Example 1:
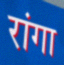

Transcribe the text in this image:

रांगा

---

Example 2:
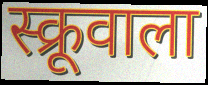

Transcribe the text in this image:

स्क्रूवाला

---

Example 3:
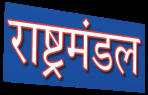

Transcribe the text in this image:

राष्ट्रमंडल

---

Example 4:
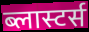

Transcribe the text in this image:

ब्लास्टर्स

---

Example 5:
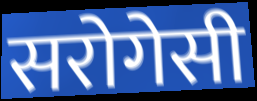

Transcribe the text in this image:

सरोगेसी